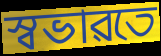
স্বভাৱতে